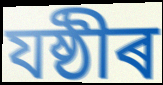
যষ্ঠীৰ